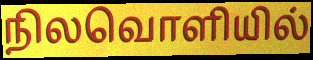
நிலவொளியில்